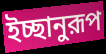
ইচ্ছানুরূপ